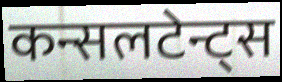
कन्सलटेन्ट्स